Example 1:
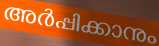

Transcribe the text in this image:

അർപ്പിക്കാനും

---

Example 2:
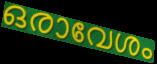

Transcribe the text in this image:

ഒരാവേശം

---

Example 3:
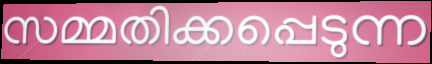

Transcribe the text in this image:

സമ്മതിക്കപ്പെടുന്ന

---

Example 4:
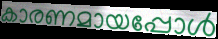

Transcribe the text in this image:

കാരണമായപ്പോൾ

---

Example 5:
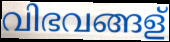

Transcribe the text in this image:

വിഭവങ്ങള്